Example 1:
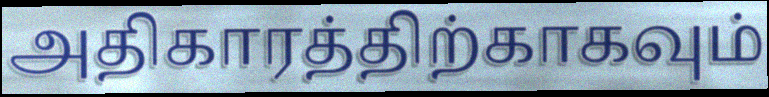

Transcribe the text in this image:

அதிகாரத்திற்காகவும்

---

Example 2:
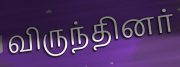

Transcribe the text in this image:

விருந்தினர்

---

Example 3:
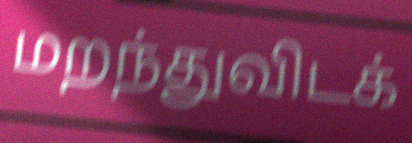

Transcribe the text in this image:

மறந்துவிடக்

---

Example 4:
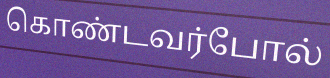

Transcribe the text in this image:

கொண்டவர்போல்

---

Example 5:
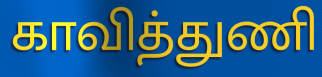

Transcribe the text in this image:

காவித்துணி